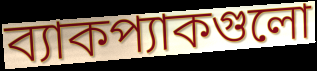
ব্যাকপ্যাকগুলো